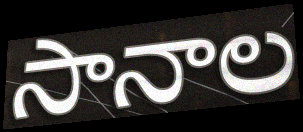
సానాల